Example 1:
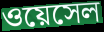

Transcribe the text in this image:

ওয়েসেল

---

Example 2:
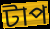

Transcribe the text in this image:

টাপ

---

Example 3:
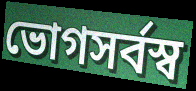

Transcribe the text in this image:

ভোগসর্বস্ব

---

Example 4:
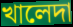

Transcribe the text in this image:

খালেদা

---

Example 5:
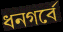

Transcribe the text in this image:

ধনগর্বে